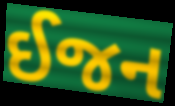
ઈજન